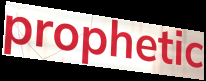
prophetic